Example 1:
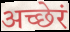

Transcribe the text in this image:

अच्छेरं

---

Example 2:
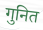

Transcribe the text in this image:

गुनित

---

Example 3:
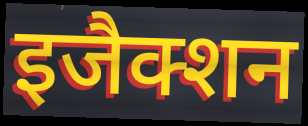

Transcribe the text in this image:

इजैक्शन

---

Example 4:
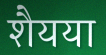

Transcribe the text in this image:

शैयया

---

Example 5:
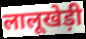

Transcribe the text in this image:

लालूखेड़ी